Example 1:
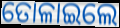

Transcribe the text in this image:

ତୋଳାଇଲେ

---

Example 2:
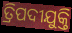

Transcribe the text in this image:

ତ୍ରିପଦୀଯୁକ୍ତି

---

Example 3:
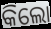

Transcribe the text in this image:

କିଲୋ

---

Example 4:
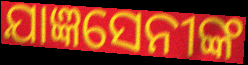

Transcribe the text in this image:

ଯାଜ୍ଞସେନୀଙ୍କ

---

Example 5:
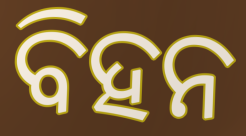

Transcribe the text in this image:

ବିହନ